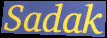
Sadak